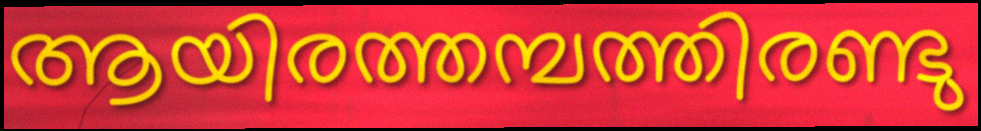
ആയിരത്തമ്പത്തിരണ്ടു